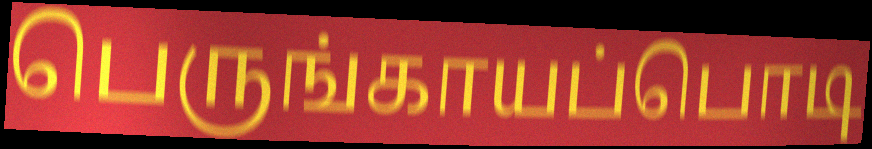
பெருங்காயப்பொடி